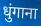
धुंगाना